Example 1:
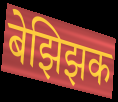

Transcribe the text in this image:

बेझिझक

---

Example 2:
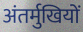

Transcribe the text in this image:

अंतर्मुखियों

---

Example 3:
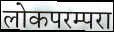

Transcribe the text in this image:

लोकपरम्परा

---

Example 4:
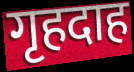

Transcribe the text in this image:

गृहदाह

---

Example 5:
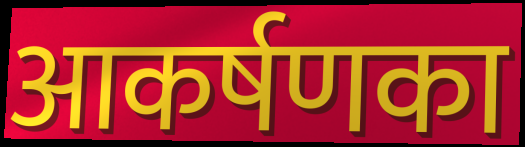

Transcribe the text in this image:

आकर्षणका